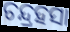
ଚନ୍ଦ୍ରହସା